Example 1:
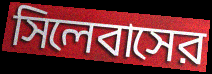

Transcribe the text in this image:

সিলেবাসের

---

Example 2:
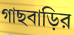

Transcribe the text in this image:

গাছবাড়ির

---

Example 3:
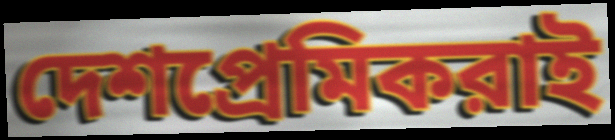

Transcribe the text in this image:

দেশপ্রেমিকরাই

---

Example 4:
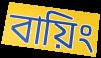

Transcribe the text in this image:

বায়িং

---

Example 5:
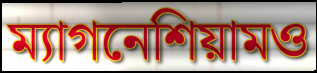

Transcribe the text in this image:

ম্যাগনেশিয়ামও